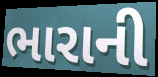
ભારાની